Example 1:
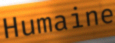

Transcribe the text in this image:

Humaine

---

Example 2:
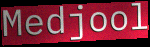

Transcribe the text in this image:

Medjool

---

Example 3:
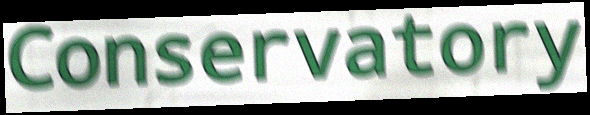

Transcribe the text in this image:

Conservatory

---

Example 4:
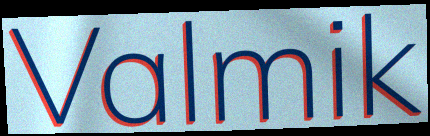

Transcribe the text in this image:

Valmik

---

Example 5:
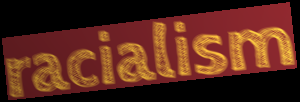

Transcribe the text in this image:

racialism